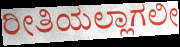
ರೀತಿಯಲ್ಲಾಗಲೀ